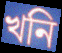
খনি